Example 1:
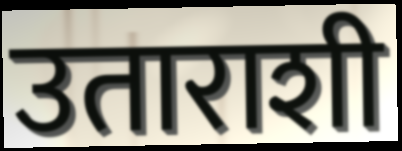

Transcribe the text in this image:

उताराशी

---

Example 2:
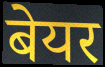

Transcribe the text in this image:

बेयर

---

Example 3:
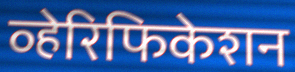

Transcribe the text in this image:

व्हेरिफिकेशन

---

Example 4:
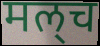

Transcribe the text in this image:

मल्च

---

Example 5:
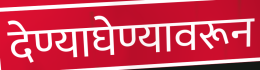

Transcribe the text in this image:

देण्याघेण्यावरून